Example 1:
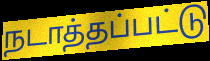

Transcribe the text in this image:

நடாத்தப்பட்டு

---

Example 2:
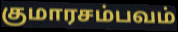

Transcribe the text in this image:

குமாரசம்பவம்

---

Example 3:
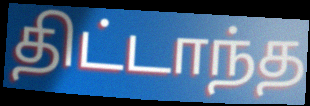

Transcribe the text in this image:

திட்டாந்த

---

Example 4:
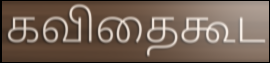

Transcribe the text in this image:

கவிதைகூட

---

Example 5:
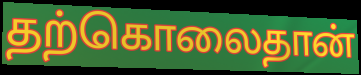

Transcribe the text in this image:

தற்கொலைதான்